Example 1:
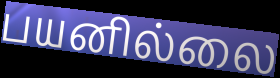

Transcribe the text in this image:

பயனில்லை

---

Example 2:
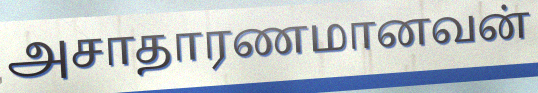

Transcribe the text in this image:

அசாதாரணமானவன்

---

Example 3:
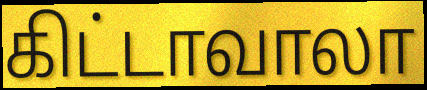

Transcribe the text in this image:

கிட்டாவாலா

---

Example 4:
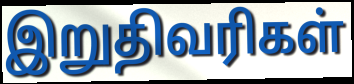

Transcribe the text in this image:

இறுதிவரிகள்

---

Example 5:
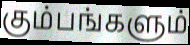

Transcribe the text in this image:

கும்பங்களும்